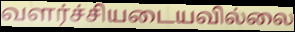
வளர்ச்சியடையவில்லை